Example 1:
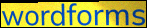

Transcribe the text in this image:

wordforms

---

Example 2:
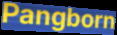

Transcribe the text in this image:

Pangborn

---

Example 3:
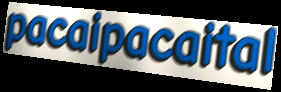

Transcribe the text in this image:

pacaipacaital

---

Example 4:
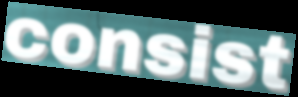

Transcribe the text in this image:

consist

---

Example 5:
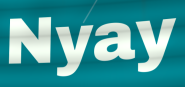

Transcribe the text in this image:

Nyay